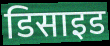
डिसाइड